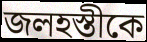
জলহস্তীকে